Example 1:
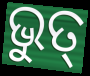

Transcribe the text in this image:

ଭୁତ୍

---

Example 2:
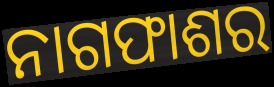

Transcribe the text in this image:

ନାଗଫାଶର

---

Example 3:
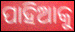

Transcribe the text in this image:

ପାହିଆକୁ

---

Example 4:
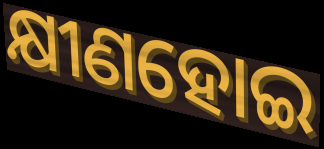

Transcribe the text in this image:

କ୍ଷୀଣହୋଇ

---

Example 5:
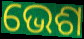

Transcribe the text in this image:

ଭେଶ